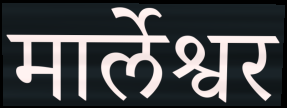
मार्लेश्वर